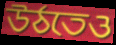
উঠতেও